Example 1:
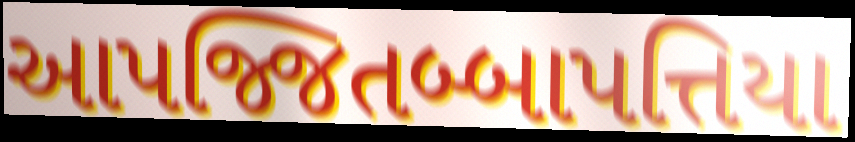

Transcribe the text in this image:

આપજ્જિતબ્બાપત્તિયા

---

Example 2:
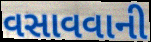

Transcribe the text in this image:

વસાવવાની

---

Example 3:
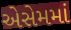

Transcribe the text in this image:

એસેમમાં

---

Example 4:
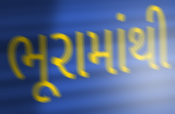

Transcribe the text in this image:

ભૂરામાંથી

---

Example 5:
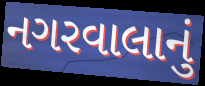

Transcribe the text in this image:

નગરવાલાનું